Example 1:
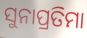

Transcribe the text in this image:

ସୁନାପ୍ରତିମା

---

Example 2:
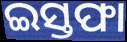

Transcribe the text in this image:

ଇସ୍ତଫା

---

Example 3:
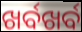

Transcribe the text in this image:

ଖର୍ବଖର୍ବ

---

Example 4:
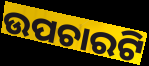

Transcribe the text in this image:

ଉପଚାରଟି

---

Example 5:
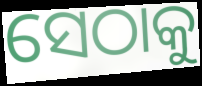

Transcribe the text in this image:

ସେଠାକୁ